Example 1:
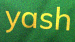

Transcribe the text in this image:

yash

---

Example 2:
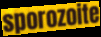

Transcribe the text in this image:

sporozoite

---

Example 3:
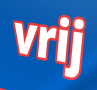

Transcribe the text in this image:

vrij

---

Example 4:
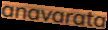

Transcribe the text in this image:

anavarata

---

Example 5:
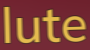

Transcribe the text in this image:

lute